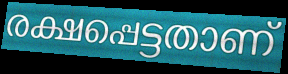
രക്ഷപ്പെട്ടതാണ്